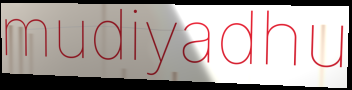
mudiyadhu